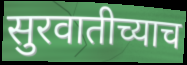
सुरवातीच्याच